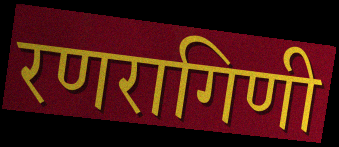
रणरागिणी